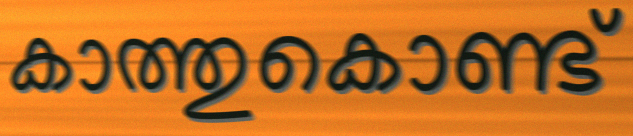
കാത്തുകൊണ്ട്